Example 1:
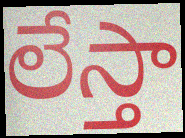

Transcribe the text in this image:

లేస్తా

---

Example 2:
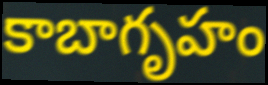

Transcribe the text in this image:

కాబాగృహం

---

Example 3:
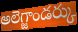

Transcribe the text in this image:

అలెగ్జాండర్కు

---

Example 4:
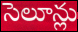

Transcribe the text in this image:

సెలూన్లు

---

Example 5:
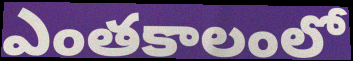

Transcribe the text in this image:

ఎంతకాలంలో